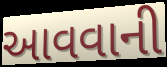
આવવાની